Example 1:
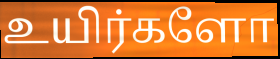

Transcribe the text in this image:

உயிர்களோ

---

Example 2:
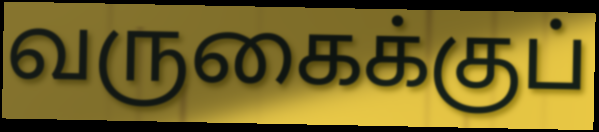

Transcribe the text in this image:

வருகைக்குப்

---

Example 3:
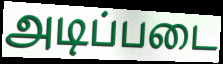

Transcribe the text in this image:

அடிப்படை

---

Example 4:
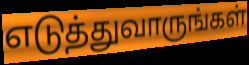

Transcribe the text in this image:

எடுத்துவாருங்கள்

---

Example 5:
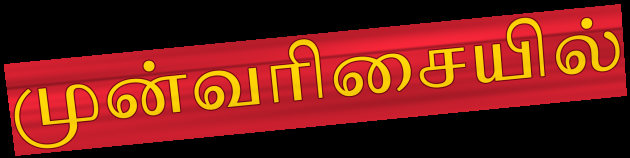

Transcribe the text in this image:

முன்வரிசையில்